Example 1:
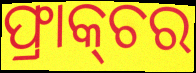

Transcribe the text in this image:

ଫ୍ରାକ୍‌ଚର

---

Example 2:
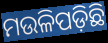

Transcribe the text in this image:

ମଉଳିପଡ଼ିଛି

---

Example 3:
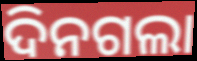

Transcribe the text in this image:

ଦିନଗଲା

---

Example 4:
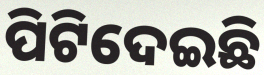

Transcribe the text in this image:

ପିଟିଦେଇଛି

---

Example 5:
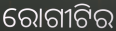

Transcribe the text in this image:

ରୋଗୀଟିର